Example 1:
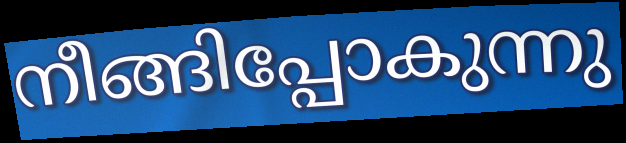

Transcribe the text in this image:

നീങ്ങിപ്പോകുന്നു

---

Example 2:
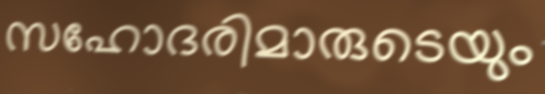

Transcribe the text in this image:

സഹോദരിമാരുടെയും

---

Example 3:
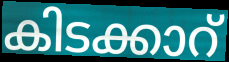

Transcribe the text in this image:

കിടക്കാറ്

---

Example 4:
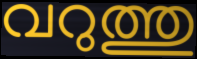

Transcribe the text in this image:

വറുത്തു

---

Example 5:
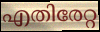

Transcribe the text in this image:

എതിരേറ്റ